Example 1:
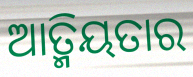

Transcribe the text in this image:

ଆତ୍ମିୟତାର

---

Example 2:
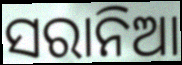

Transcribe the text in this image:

ସରାନିଆ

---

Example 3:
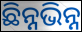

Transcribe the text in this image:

ଛିନ୍ନଭିନ୍ନ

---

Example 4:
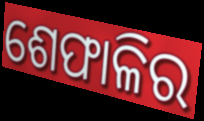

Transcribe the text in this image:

ଶେଫାଳିର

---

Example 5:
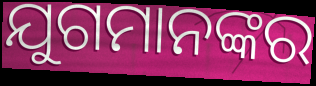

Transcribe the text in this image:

ଯୁଗମାନଙ୍କର